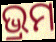
ଭ୍ରମ